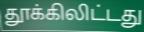
தூக்கிலிட்டது